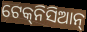
ଟେକ୍‌ନିସିଆନ୍